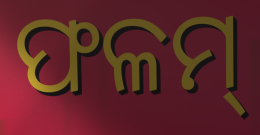
ଫଳମ୍